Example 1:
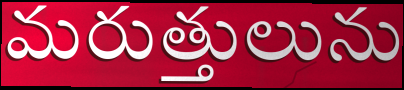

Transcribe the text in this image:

మరుత్తులును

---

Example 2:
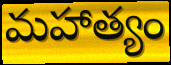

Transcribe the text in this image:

మహాత్యం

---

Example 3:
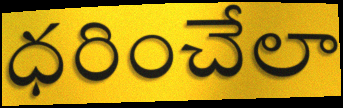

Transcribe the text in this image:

ధరించేలా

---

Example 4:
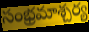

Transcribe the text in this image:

సంభ్రమాశ్చర్య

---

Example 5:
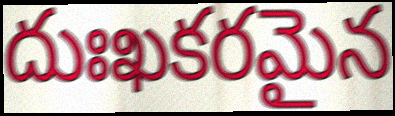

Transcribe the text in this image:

దుఃఖకరమైన